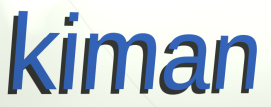
kiman